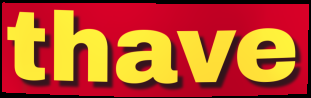
thave